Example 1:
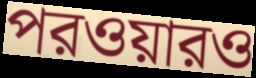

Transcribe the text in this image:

পরওয়ারও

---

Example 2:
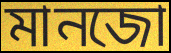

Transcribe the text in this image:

মানজো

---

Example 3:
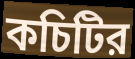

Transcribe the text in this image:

কচিটির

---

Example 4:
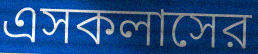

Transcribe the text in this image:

এসকলাসের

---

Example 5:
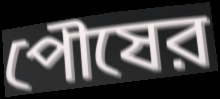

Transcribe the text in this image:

পৌষের